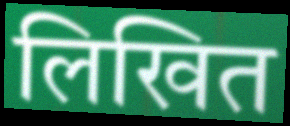
लिखित